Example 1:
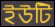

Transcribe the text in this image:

ইউটি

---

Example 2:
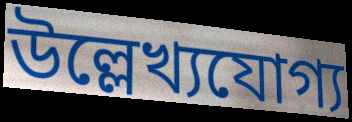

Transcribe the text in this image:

উল্লেখ্যযোগ্য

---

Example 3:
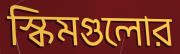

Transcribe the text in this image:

স্কিমগুলোর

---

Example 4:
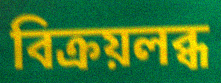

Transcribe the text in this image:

বিক্রয়লব্ধ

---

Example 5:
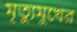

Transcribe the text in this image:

মৃত্যুমুখের